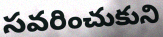
సవరించుకుని